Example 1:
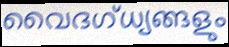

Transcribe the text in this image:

വൈദഗ്ധ്യങ്ങളും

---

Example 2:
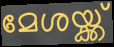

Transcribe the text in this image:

മേശയ്ക്ക്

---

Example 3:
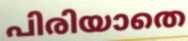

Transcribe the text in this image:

പിരിയാതെ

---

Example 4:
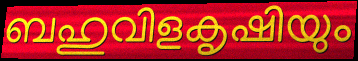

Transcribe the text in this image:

ബഹുവിളകൃഷിയും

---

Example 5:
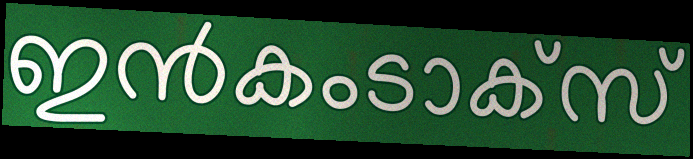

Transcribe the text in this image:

ഇൻകംടാക്സ്